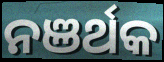
ନଞର୍ଥକ